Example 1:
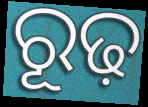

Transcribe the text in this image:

ରୂଢ଼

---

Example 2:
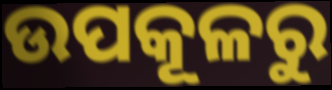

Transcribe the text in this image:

ଉପକୂଳରୁ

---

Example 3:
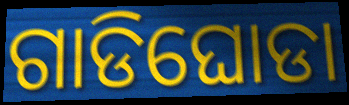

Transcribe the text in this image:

ଗାଡିଘୋଡା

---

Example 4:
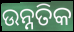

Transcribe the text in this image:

ଉନ୍ନତିକ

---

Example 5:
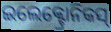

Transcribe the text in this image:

ଇଲେକ୍ଟ୍ରୋନିକସ୍